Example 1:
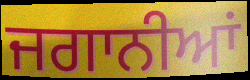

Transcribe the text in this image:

ਜਗਾਨੀਆਂ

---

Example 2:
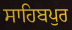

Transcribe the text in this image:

ਸਾਹਿਬਪੁਰ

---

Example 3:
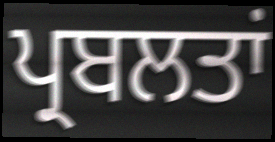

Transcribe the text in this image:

ਪ੍ਰਬਲਤਾਂ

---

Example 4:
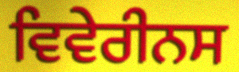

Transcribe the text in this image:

ਵਿਵੇਰੀਨਸ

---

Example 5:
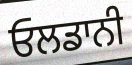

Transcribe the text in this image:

ਓਲਡਾਨੀ